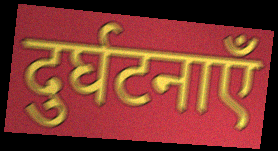
दुर्घटनाएँ